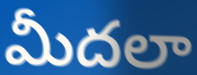
మీదలా